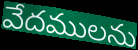
వేదములను